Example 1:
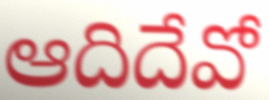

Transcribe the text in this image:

ఆదిదేవో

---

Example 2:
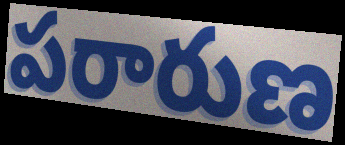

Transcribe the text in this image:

పరారుణ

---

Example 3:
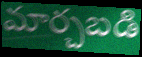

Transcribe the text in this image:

మార్చబడి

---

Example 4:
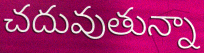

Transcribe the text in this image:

చదువుతున్నా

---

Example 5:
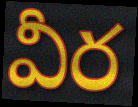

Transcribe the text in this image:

వీర